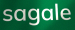
sagale